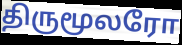
திருமூலரோ